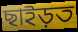
ছাইড়ত